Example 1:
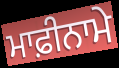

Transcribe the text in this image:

ਮਾਫ਼ੀਨਾਮੇ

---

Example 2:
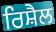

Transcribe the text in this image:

ਰਿਸ਼ੈਲ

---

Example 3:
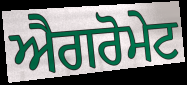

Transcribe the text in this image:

ਐਗਰੋਮੇਟ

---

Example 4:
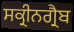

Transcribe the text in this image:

ਸਕ੍ਰੀਨਗ੍ਰੈਬ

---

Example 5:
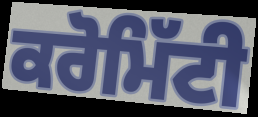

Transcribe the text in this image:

ਕਰੋਮਿੱਟੀ